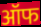
ऑफ